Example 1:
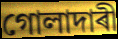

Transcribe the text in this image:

গোলাদাৰী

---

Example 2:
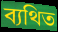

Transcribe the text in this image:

ব্যথিত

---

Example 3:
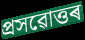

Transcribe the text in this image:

প্ৰসৱোত্তৰ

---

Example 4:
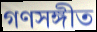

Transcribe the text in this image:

গণসঙ্গীত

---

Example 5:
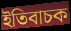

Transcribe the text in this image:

ইতিবাচক